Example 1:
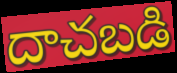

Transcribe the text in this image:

దాచబడి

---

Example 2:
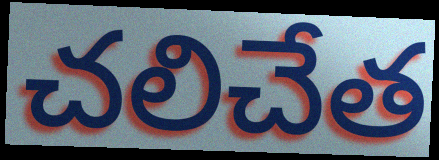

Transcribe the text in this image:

చలిచేత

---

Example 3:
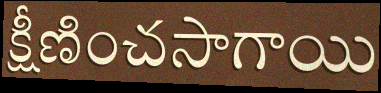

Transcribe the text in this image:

క్షీణించసాగాయి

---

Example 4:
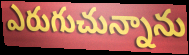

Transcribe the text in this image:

ఎరుగుచున్నాను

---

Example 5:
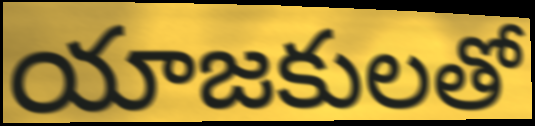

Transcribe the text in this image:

యాజకులతో